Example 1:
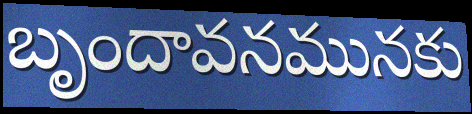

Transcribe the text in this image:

బృందావనమునకు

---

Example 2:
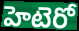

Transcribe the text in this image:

హెటెరో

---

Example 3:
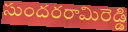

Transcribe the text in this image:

సుందరరామిరెడ్డి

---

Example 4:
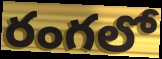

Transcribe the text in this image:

రంగలో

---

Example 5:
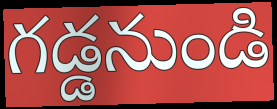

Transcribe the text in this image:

గడ్డనుండి